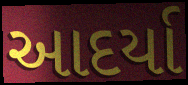
આદર્યા